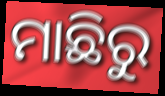
ମାଛିରୁ